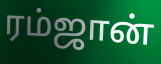
ரம்ஜான்